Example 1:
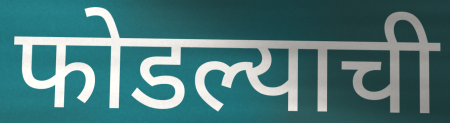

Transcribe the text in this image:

फोडल्याची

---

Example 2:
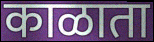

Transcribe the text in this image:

काळाता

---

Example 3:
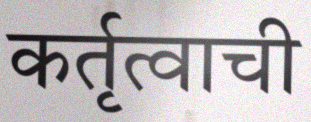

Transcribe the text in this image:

कर्तृत्वाची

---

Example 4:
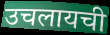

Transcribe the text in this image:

उचलायची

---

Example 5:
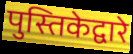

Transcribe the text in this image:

पुस्तिकेद्वारे